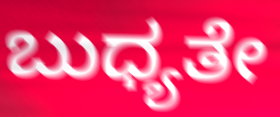
ಬುಧ್ಯತೇ